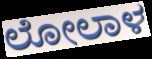
ಲೋಲಾಳ